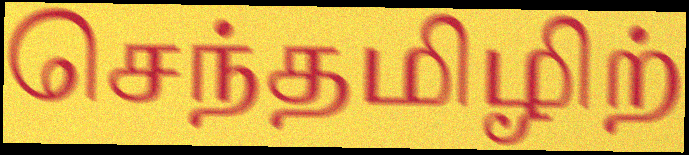
செந்தமிழிற்